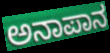
ಅನಾಪಾನ